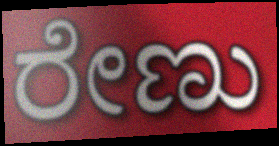
ರೇಣು